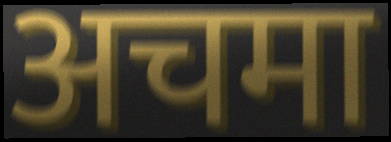
अचमा